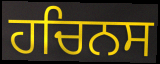
ਹਚਿਨਸ